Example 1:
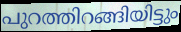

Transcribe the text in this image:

പുറത്തിറങ്ങിയിട്ടും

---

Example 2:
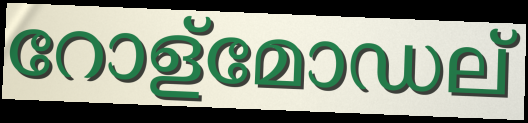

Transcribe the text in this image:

റോള്മോഡല്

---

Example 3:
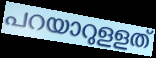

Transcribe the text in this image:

പറയാറുളളത്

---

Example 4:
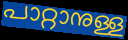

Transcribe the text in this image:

പാറ്റാനുള്ള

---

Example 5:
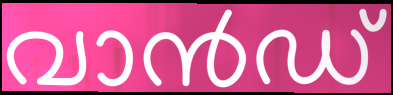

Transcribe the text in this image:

വാൻഡ്